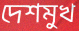
দেশমুখ